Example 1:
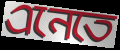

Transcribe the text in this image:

এনেতে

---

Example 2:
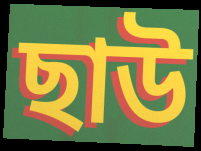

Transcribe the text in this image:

ছাউ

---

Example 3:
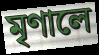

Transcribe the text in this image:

মৃণালে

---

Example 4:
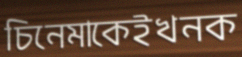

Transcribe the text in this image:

চিনেমাকেইখনক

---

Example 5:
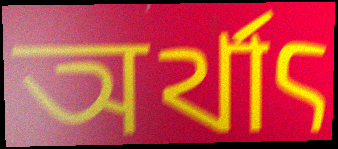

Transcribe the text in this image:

অৰ্থাৎ